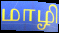
மாழி